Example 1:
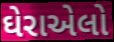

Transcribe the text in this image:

ઘેરાએલો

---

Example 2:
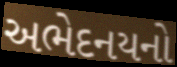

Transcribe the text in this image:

અભેદનયનો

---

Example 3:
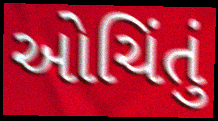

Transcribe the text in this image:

ઓચિંતું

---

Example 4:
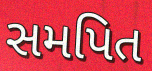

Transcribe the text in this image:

સમપિત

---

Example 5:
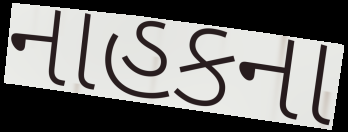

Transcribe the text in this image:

નાહકના